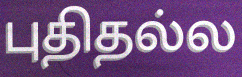
புதிதல்ல